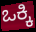
ಒಕ್ಕಿ